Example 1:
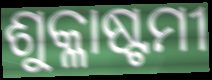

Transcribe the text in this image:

ଶୁକ୍ଳାଷ୍ଟମୀ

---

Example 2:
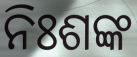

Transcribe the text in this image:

ନିଃଶଙ୍କ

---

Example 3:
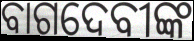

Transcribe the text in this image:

ବାଗଦେବୀଙ୍କ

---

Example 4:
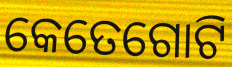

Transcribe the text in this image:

କେତେଗୋଟି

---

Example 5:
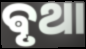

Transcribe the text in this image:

ଵୃଥା